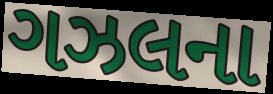
ગઝલના